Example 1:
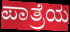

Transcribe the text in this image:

ಪಾತ್ರೆಯ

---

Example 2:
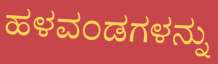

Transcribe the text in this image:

ಹಳವಂಡಗಳನ್ನು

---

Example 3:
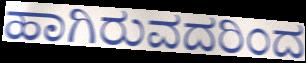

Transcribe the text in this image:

ಹಾಗಿರುವದರಿಂದ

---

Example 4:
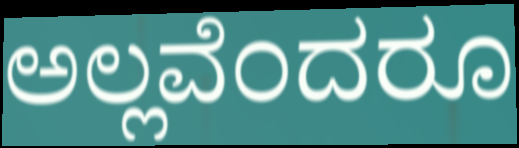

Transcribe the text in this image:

ಅಲ್ಲವೆಂದರೂ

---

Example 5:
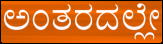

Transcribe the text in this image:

ಅಂತರದಲ್ಲೇ